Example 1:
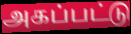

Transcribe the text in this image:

அகப்பட்டு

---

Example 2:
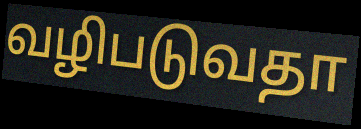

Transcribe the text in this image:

வழிபடுவதா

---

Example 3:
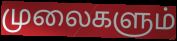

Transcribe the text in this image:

முலைகளும்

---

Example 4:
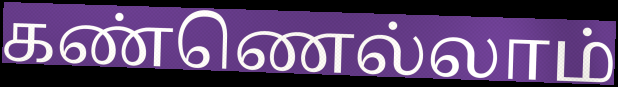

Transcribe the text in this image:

கண்ணெல்லாம்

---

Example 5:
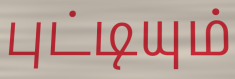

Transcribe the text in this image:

புட்டியும்